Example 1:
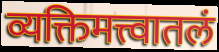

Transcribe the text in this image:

व्यक्तिमत्त्वातलं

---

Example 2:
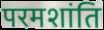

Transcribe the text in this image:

परमशांति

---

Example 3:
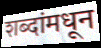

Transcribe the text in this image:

शब्दांमधून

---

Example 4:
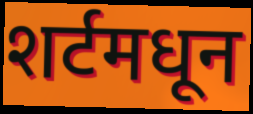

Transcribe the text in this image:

शर्टमधून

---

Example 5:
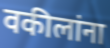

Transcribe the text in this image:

वकीलांना